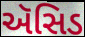
ઍસિડ